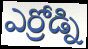
ఎర్రోడ్ని